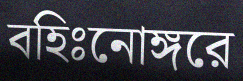
বহিঃনোঙ্গরে